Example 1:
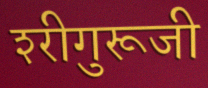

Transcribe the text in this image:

श्रीगुरूजी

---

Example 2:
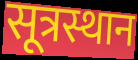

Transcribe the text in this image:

सूत्रस्थान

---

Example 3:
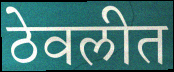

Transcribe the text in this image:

ठेवलीत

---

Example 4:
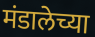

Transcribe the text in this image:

मंडालेच्या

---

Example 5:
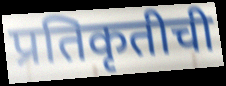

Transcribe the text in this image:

प्रतिकृतीची